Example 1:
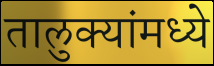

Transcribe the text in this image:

तालुक्यांमध्ये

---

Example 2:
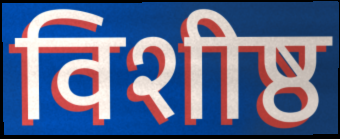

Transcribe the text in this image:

विशीष्ठ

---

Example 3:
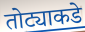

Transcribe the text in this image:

तोट्याकडे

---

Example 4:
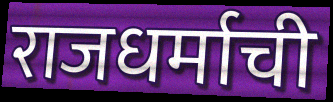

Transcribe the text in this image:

राजधर्माची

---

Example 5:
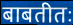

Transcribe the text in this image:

बाबतीतः